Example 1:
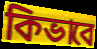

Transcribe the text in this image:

কিভাবে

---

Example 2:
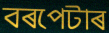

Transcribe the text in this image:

বৰপেটাৰ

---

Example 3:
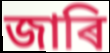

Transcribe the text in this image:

জাৰি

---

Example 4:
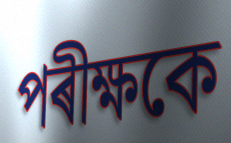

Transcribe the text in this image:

পৰীক্ষকে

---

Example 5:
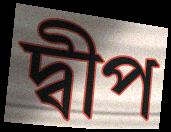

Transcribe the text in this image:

দ্বীপ